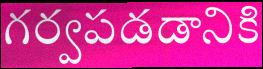
గర్వపడడానికి